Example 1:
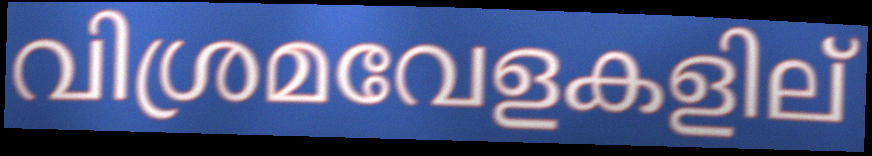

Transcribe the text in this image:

വിശ്രമവേളകളില്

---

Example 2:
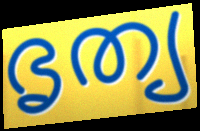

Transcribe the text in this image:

ഭൃത്യ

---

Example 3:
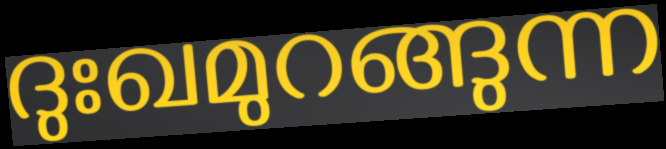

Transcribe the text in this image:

ദുഃഖമുറങ്ങുന്ന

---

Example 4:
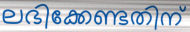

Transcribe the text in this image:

ലഭിക്കേണ്ടതിന്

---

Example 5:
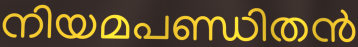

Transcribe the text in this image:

നിയമപണ്ഡിതൻ